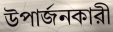
উপার্জনকারী